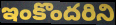
ఇంకొందరిని